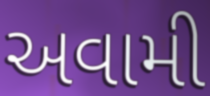
અવામી